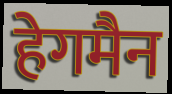
हेगमैन